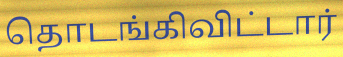
தொடங்கிவிட்டார்